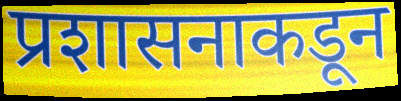
प्रशासनाकडून